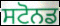
ਸਟੋਨਡ